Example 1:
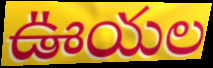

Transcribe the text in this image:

ఊయల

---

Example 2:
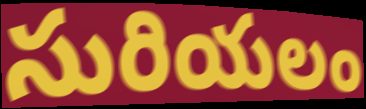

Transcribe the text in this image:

సురియలం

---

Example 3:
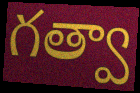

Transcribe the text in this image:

గత్వా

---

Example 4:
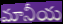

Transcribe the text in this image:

మానీయ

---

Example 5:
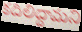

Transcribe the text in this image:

కదిలిద్దామని